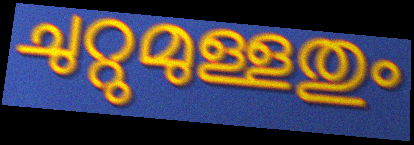
ചുറ്റുമുള്ളതും